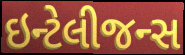
ઇન્ટેલીજન્સ